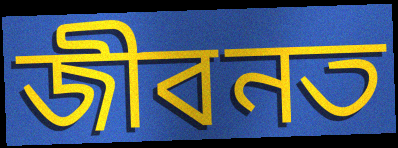
জীবনত